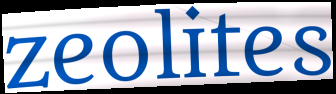
zeolites